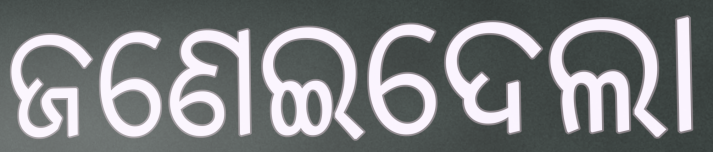
ଜଣେଇଦେଲା